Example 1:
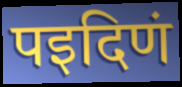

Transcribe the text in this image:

पइदिणं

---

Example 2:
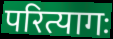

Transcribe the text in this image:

परित्यागः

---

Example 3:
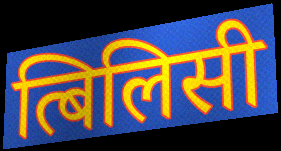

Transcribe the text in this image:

त्बिलिसी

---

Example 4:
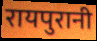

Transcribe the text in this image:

रायपुरानी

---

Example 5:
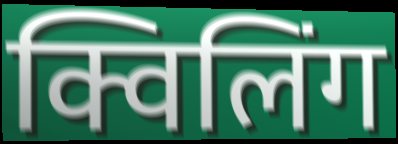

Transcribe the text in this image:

क्विलिंग